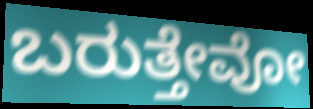
ಬರುತ್ತೇವೋ